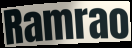
Ramrao